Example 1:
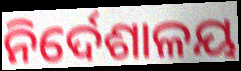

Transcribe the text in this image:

ନିର୍ଦେଶାଳୟ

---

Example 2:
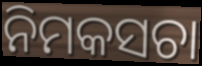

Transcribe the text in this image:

ନିମକସଚା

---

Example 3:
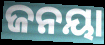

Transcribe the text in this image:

ଜନୟା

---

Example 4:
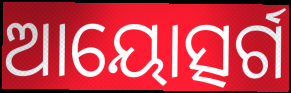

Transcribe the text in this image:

ଆୟୋତ୍ସର୍ଗ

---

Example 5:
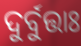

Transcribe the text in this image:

ଦୁର୍ବୁତ୍ତାଃ